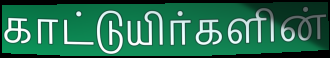
காட்டுயிர்களின்